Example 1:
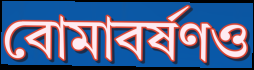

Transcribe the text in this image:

বোমাবর্ষণও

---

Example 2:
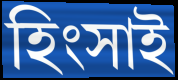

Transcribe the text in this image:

হিংসাই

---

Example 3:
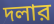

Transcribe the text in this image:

দলার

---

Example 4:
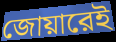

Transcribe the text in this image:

জোয়ারেই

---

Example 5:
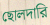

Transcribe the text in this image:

ছোলদারি